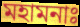
মহামনাঃ